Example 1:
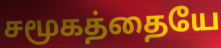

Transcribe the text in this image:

சமூகத்தையே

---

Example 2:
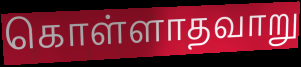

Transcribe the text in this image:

கொள்ளாதவாறு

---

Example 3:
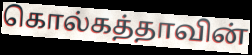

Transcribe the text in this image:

கொல்கத்தாவின்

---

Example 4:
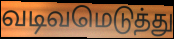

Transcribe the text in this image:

வடிவமெடுத்து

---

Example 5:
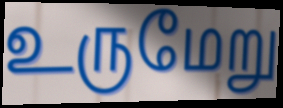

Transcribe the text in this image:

உருமேறு